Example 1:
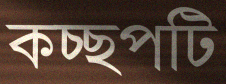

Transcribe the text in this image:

কচ্ছপটি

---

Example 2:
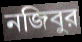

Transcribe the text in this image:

নজিবুর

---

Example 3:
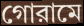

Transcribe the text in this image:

গোরামে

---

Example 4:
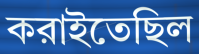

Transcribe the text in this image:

করাইতেছিল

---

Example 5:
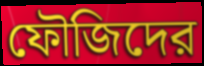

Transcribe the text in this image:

ফৌজিদের